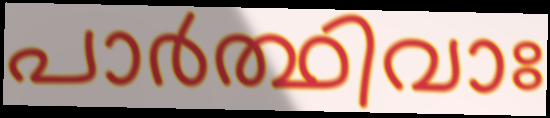
പാർത്ഥിവാഃ